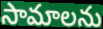
సామాలను